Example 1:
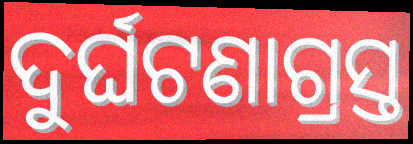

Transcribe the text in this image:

ଦୁର୍ଘଟଣାଗ୍ରସ୍ତ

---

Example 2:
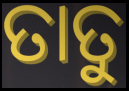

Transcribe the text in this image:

ତାତୁ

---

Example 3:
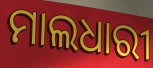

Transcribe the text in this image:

ମାଲଧାରୀ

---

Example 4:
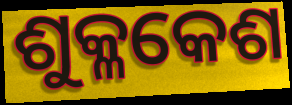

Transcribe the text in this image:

ଶୁକ୍ଳକେଶ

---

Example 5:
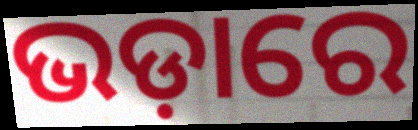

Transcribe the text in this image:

ଭଡ଼ାରେ